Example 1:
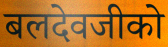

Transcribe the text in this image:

बलदेवजीको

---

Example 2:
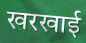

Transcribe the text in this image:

खरखाई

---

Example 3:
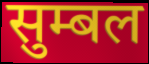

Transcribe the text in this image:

सुम्बल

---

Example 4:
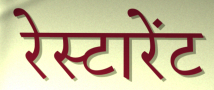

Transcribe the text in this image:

रेस्टारेंट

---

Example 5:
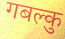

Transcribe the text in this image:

गबल्कु